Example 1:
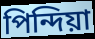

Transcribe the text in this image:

পিন্দিয়া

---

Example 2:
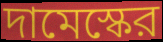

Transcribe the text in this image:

দামেস্কের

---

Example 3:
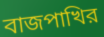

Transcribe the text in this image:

বাজপাখির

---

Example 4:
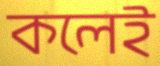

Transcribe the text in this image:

কলেই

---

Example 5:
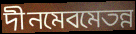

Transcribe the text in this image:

দীনমেবমেতন্ন